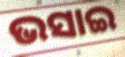
ଭସାଇ